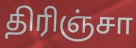
திரிஞ்சா